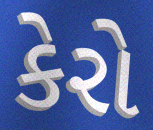
કેરો